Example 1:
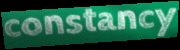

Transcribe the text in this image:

constancy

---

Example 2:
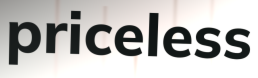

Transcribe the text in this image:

priceless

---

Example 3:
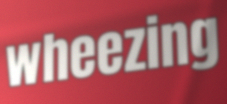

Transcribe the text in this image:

wheezing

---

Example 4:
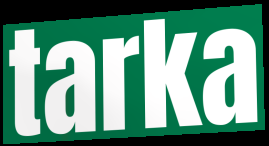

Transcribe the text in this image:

tarka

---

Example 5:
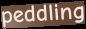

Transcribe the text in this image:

peddling